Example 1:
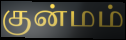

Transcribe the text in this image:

குன்மம்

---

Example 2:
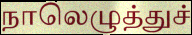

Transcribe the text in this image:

நாலெழுத்துச்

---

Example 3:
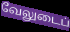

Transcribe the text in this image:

வேலுடைப்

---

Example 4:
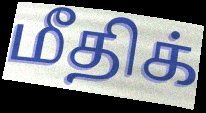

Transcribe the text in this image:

மீதிக்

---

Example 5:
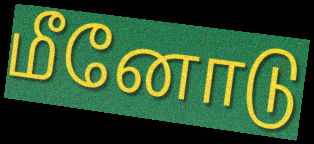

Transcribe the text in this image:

மீனோடு